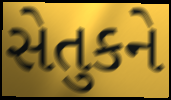
સેતુકને